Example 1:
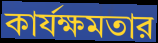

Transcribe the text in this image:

কার্যক্ষমতার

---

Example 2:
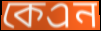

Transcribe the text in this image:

কেএন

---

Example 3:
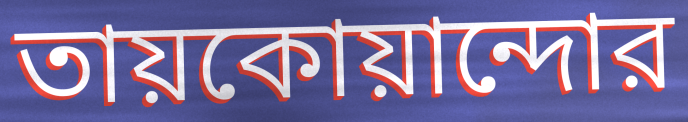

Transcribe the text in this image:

তায়কোয়ান্দোর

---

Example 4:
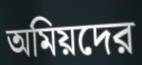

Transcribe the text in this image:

অমিয়দের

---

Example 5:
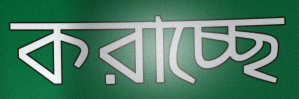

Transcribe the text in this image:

করাচ্ছে